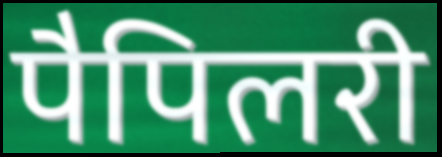
पैपिलरी